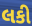
લકી